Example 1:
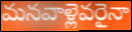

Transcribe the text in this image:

మనవాళ్లెవరైనా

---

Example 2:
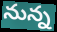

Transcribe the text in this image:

నున్న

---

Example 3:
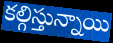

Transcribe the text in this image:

కల్గిస్తున్నాయి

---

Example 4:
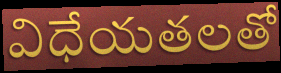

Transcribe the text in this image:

విధేయతలతో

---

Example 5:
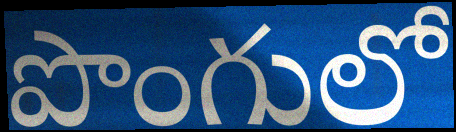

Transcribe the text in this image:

పొంగులో